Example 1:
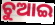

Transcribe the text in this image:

ଚୁଆଇ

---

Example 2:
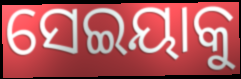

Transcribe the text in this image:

ସେଇୟାକୁ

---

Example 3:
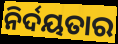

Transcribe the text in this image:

ନିର୍ଦୟତାର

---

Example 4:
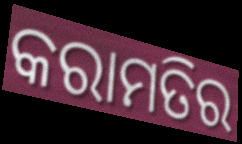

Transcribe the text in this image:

କରାମତିର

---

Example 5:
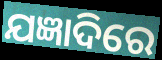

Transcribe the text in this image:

ଯଜ୍ଞାଦିରେ